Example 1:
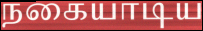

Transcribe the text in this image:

நகையாடிய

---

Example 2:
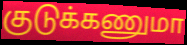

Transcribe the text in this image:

குடுக்கணுமா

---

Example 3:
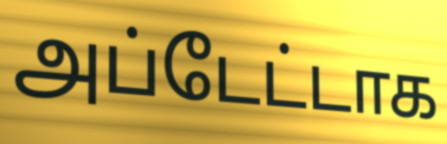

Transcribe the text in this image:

அப்டேட்டாக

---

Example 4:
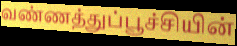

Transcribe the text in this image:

வண்ணத்துப்பூச்சியின்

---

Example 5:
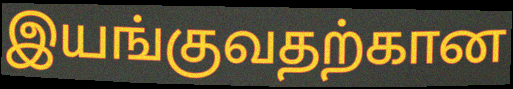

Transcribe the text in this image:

இயங்குவதற்கான